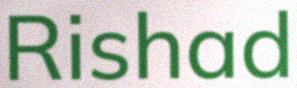
Rishad